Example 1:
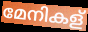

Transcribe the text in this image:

മേനികള്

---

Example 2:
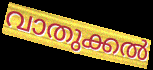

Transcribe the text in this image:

വാതുക്കൽ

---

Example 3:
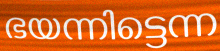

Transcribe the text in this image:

ഭയന്നിട്ടെന്ന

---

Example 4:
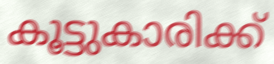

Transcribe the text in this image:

കൂട്ടുകാരിക്ക്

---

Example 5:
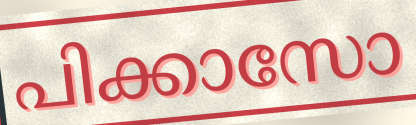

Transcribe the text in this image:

പിക്കാസോ